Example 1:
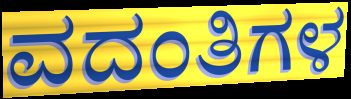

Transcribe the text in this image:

ವದಂತಿಗಳ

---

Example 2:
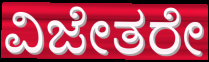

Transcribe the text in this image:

ವಿಜೇತರೇ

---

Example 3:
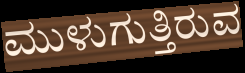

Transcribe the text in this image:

ಮುಳುಗುತ್ತಿರುವ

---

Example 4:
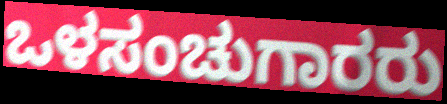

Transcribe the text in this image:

ಒಳಸಂಚುಗಾರರು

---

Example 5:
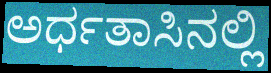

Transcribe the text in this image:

ಅರ್ಧತಾಸಿನಲ್ಲಿ